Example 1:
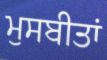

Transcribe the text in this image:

ਮੁਸਬੀਤਾਂ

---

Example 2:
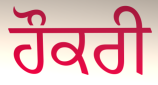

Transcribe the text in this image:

ਹੌਕਰੀ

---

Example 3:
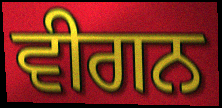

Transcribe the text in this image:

ਵੀਗਨ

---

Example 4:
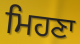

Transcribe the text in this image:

ਮਿਹਣਾ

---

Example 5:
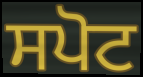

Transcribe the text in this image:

ਸਪੋਟ